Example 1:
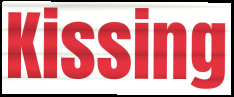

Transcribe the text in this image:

Kissing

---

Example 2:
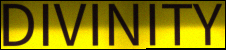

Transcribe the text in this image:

DIVINITY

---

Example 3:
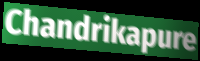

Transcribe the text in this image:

Chandrikapure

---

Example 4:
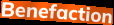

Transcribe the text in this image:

Benefaction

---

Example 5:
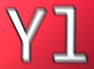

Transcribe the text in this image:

Yl